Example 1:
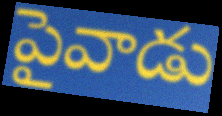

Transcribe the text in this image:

పైవాడు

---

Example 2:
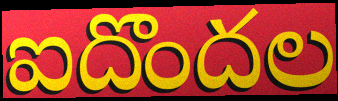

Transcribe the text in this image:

ఐదొందల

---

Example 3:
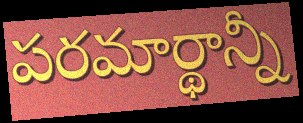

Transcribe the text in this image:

పరమార్థాన్నీ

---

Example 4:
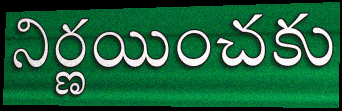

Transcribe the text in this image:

నిర్ణయించకు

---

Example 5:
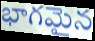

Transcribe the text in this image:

భాగమైన